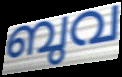
ബുവ